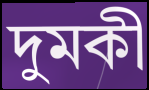
দুমকী